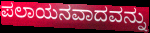
ಪಲಾಯನವಾದವನ್ನು